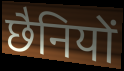
छैनियों